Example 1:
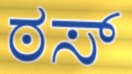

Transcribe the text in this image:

ಠಸ್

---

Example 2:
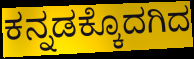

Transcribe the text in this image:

ಕನ್ನಡಕ್ಕೊದಗಿದ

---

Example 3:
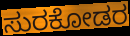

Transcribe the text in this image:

ಸುರಕೋಡರ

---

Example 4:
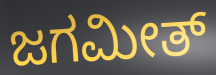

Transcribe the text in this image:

ಜಗಮೀತ್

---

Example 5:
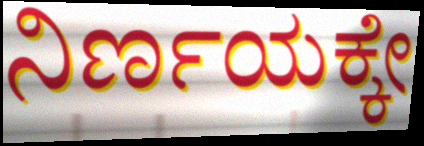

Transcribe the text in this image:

ನಿರ್ಣಯಕ್ಕೇ